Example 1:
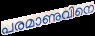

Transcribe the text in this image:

പരമാണുവിനെ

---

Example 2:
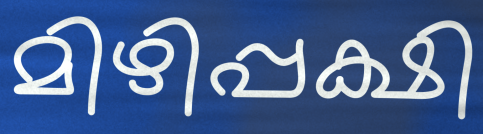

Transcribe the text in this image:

മിഴിപ്പക്ഷി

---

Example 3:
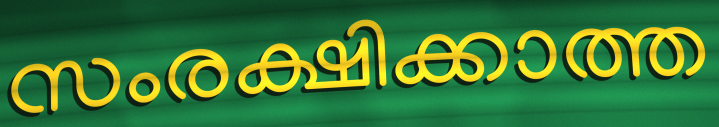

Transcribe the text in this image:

സംരക്ഷിക്കാത്ത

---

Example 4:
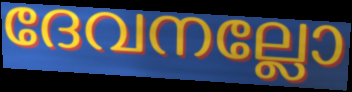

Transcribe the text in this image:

ദേവനല്ലോ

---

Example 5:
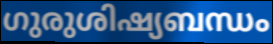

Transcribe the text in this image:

ഗുരുശിഷ്യബന്ധം